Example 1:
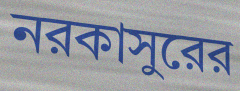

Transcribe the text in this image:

নরকাসুরের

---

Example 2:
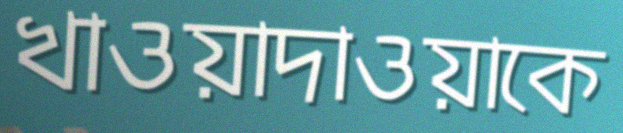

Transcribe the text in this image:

খাওয়াদাওয়াকে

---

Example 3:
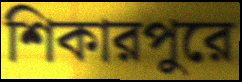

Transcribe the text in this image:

শিকারপুরে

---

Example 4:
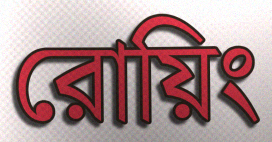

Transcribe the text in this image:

রোয়িং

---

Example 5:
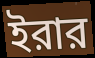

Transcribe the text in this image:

ইরার